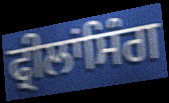
ਫ੍ਰੀਲਾਂਸਿੰਗ